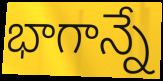
భాగాన్నే